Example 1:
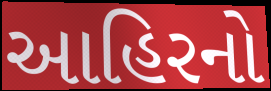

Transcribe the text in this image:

આહિરનો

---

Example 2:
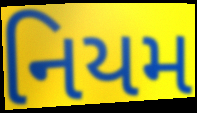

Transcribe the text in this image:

નિયમ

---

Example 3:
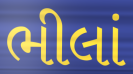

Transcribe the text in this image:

ભીલાં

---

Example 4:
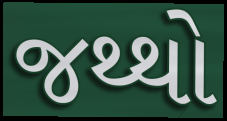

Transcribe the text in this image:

જથ્થો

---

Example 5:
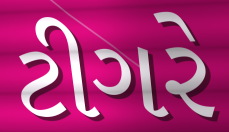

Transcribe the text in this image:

ટીગરે